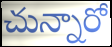
చున్నారో